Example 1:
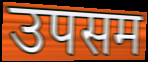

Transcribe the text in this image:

उपसम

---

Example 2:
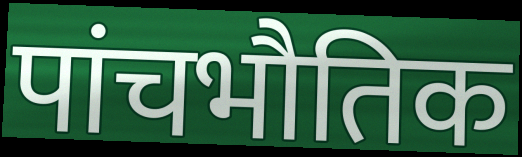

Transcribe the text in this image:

पांचभौतिक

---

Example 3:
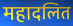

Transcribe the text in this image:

महादलित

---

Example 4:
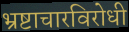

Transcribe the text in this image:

भ्रष्टाचारविरोधी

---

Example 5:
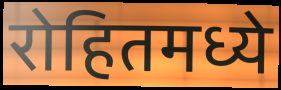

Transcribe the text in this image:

रोहितमध्ये